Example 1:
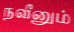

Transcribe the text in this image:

நவீனும்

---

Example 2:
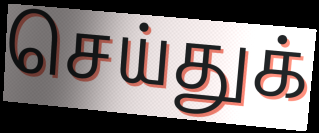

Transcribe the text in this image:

செய்துக்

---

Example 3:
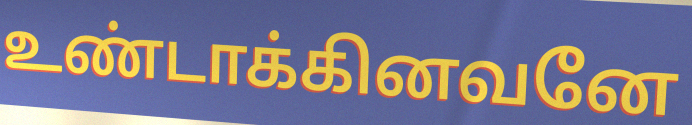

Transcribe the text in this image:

உண்டாக்கினவனே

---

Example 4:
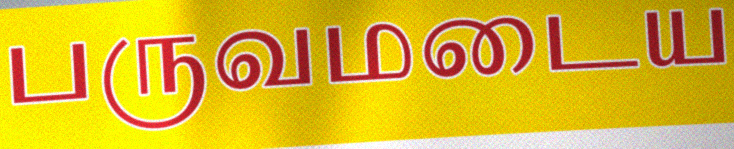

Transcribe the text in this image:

பருவமடைய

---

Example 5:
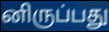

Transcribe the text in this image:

னிருப்பது